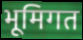
भूमिगत